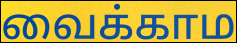
வைக்காம